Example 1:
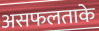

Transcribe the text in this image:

असफलताके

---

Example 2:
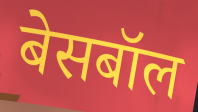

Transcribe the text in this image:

बेसबॉल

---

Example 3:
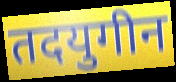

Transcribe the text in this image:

तदयुगीन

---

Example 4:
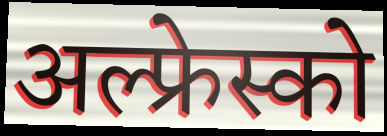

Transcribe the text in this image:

अल्फ्रेस्को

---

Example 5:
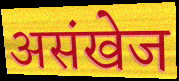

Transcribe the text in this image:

असंखेज